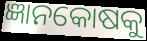
ଜ୍ଞାନକୋଷକୁ